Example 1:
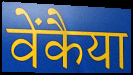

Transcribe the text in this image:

वेंकैया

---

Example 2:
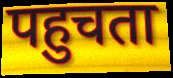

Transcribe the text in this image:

पहुचता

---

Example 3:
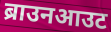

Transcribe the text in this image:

ब्राउनआउट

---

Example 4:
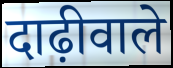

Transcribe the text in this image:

दाढ़ीवाले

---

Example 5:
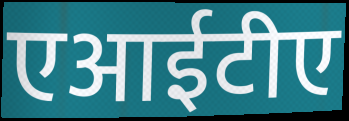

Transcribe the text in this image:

एआईटीए